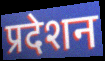
प्रदेशन